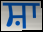
ਸ਼ਾ